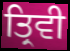
ਤ੍ਰਿਵੀ